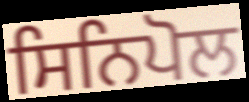
ਸਿਨਿਪੋਲ